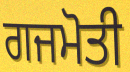
ਗਜਮੋਤੀ